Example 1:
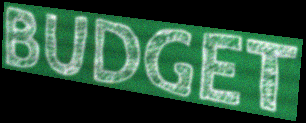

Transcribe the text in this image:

BUDGET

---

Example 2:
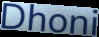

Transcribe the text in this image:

Dhoni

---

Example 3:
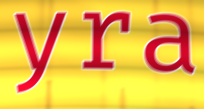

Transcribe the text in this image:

yra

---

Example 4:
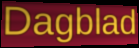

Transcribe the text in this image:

Dagblad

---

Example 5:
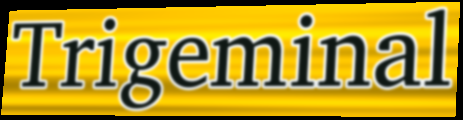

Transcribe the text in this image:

Trigeminal